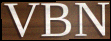
VBN